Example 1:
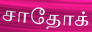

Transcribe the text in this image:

சாதோக்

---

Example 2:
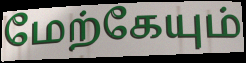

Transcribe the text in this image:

மேற்கேயும்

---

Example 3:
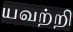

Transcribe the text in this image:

யவற்றி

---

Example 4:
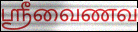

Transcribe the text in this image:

ஸ்ரீவைணவ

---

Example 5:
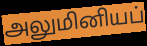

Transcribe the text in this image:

அலுமினியப்